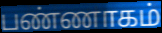
பண்ணாகம்